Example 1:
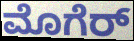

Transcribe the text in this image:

ಮೊಗೆರ್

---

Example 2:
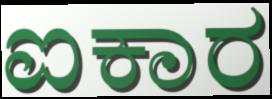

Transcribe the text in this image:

ಐಕಾರ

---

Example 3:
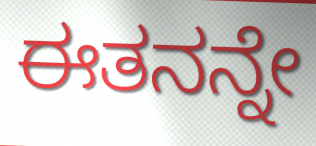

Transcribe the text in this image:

ಈತನನ್ನೇ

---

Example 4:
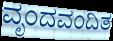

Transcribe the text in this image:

ವೃಂದವಂದಿತ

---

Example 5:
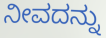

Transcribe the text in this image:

ನೀವದನ್ನು